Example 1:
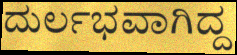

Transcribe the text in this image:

ದುರ್ಲಭವಾಗಿದ್ದ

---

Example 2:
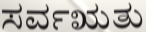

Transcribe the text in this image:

ಸರ್ವಋತು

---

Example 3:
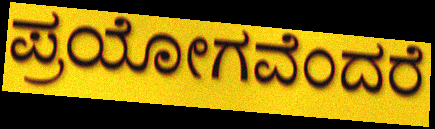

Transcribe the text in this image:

ಪ್ರಯೋಗವೆಂದರೆ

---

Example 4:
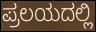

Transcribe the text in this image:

ಪ್ರಲಯದಲ್ಲಿ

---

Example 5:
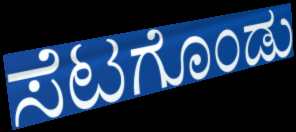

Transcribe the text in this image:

ಸೆಟಗೊಂಡು